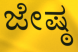
ಜೇಷ್ಠ